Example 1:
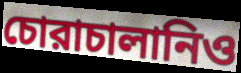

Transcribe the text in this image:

চোরাচালানিও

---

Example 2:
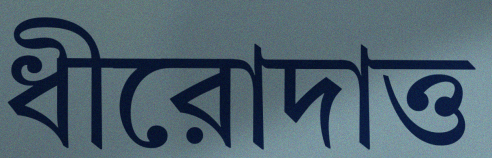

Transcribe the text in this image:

ধীরোদাত্ত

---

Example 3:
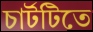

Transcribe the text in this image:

চার্টটিতে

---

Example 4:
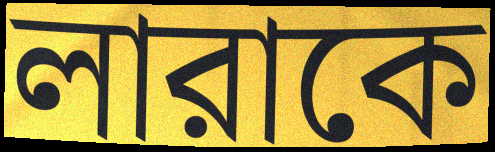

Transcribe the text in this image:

লারাকে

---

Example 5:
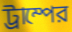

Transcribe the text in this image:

ট্রাম্পের